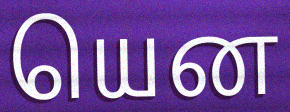
யென